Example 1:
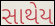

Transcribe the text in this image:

સાથેય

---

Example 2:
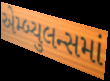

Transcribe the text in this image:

એમ્બ્યુલન્સમાં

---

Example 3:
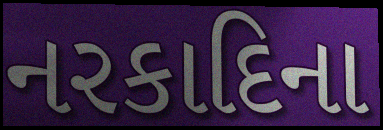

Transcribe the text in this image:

નરકાદિના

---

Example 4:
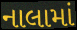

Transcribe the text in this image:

નાલામાં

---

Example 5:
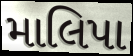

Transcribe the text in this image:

માલિપા